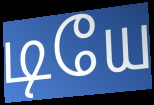
டியே